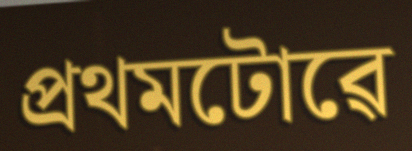
প্ৰথমটোৱে